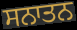
ਸਨਾਤਨ